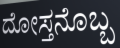
ದೋಸ್ತನೊಬ್ಬ